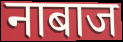
नाबाज